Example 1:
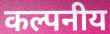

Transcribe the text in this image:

कल्पनीय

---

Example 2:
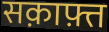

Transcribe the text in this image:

सक़ाफ़्त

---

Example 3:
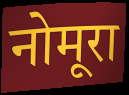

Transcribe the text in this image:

नोमूरा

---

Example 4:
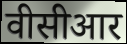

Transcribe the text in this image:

वीसीआर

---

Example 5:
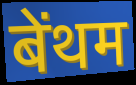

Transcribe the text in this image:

बेंथम